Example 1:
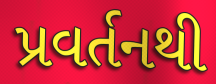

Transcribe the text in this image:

પ્રવર્તનથી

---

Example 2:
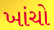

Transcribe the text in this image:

ખાંચો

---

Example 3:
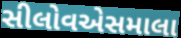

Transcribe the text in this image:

સીલોવએસમાલા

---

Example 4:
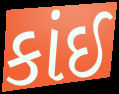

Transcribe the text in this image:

કાંઈ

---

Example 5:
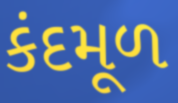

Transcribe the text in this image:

કંદમૂળ